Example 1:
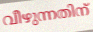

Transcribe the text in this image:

വീഴുന്നതിന്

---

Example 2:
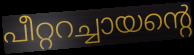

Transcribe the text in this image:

പീറ്ററച്ചായന്റെ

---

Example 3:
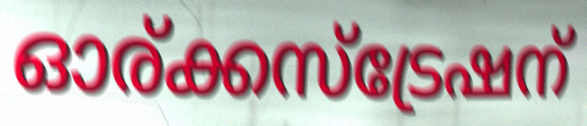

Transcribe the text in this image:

ഓര്ക്കസ്ട്രേഷന്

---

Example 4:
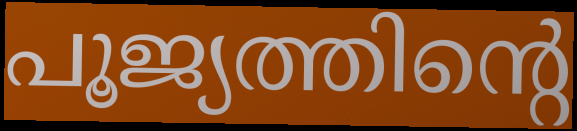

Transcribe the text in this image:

പൂജ്യത്തിന്റെ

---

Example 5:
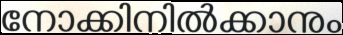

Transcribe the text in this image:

നോക്കിനിൽക്കാനും